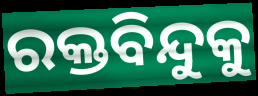
ରକ୍ତବିନ୍ଦୁକୁ